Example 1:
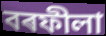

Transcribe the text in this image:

বৰফীলা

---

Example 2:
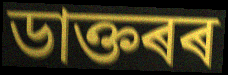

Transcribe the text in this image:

ডাক্তৰৰ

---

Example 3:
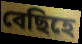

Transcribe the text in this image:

বেছিহে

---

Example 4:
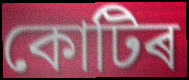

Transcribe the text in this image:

কোটিৰ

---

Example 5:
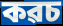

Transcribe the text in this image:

কৱচ